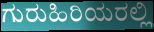
ಗುರುಹಿರಿಯರಲ್ಲಿ